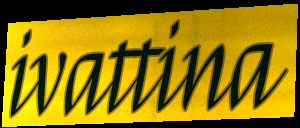
ivattina